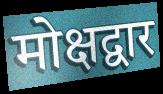
मोक्षद्वार